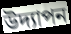
উদ্যাপন